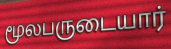
மூலபருடையார்